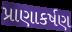
પ્રાણાકર્ષણ